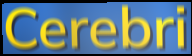
Cerebri